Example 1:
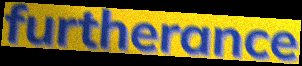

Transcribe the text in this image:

furtherance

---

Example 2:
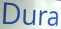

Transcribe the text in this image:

Dura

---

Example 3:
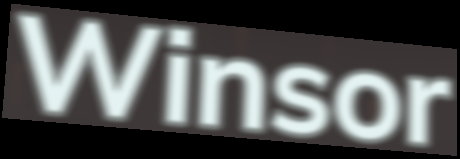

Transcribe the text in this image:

Winsor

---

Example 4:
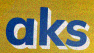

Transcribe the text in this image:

aks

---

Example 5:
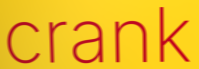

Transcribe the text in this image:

crank